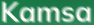
Kamsa